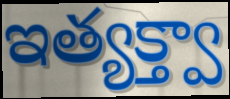
ఇత్యక్త్వా